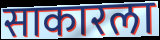
साकारला